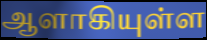
ஆளாகியுள்ள